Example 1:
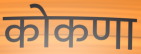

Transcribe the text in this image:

कोकणा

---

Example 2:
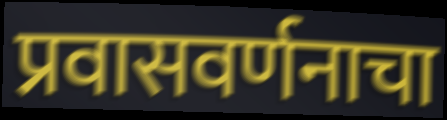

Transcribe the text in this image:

प्रवासवर्णनाचा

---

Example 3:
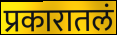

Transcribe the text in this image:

प्रकारातलं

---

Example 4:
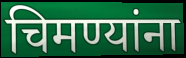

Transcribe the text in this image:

चिमण्यांना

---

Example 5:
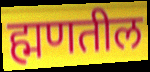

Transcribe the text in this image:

ह्मणतील